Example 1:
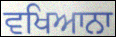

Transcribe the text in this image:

ਵਖਿਆਨਾ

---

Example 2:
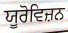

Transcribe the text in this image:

ਯੂਰੋਵਿਜ਼ਨ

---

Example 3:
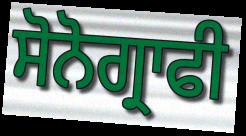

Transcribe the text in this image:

ਸੋਨੋਗ੍ਰਾਫੀ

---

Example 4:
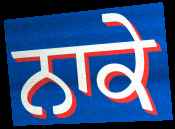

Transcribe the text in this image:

ਨਾਕੇ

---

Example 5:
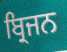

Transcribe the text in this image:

ਬ੍ਰਿਜਨ